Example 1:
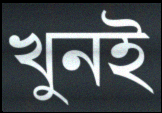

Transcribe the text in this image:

খুনই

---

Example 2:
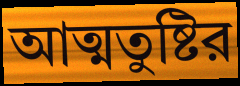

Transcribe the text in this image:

আত্মতুষ্টির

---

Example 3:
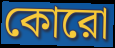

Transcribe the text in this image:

কোরো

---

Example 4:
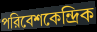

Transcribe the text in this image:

পরিবেশকেন্দ্রিক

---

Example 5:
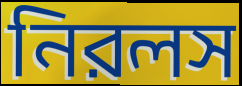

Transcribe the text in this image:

নিরলস